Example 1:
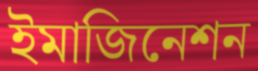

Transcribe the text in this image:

ইমাজিনেশন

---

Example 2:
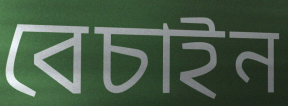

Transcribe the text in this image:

বেচাইন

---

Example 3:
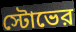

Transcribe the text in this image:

স্টোভের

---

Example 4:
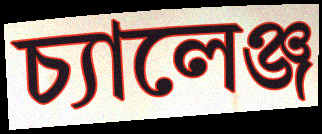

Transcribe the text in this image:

চ্যালেঞ্জ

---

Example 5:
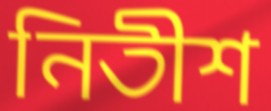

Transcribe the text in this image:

নিতীশ